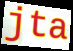
jta